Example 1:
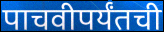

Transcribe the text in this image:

पाचवीपर्यंतची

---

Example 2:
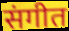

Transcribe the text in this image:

संगीत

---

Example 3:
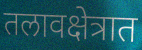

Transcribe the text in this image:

तलावक्षेत्रात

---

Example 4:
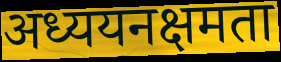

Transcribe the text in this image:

अध्ययनक्षमता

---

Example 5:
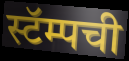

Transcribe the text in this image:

स्टॅम्पची